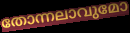
തോന്നലാവുമോ